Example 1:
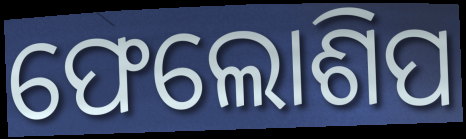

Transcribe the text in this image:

ଫେଲୋଶିପ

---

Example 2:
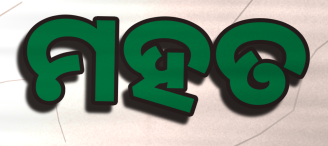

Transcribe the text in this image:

ମହତ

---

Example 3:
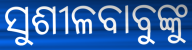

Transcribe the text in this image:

ସୁଶୀଳବାବୁଙ୍କୁ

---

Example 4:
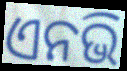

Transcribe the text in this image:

ଏନଭି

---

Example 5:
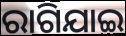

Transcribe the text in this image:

ରାଗିଯାଇ